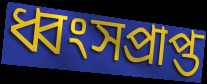
ধ্বংসপ্ৰাপ্ত